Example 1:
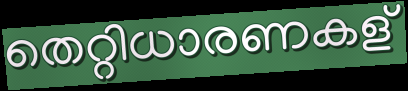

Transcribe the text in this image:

തെറ്റിധാരണകള്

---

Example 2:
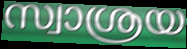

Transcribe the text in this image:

സ്വാശ്രയ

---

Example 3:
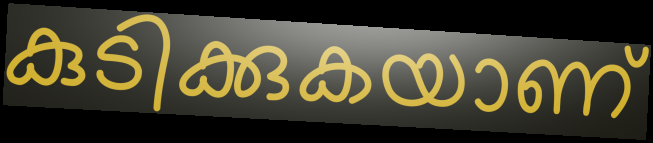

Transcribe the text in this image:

കുടിക്കുകയാണ്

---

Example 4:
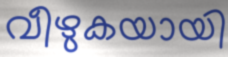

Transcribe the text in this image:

വീഴുകയായി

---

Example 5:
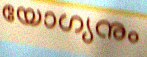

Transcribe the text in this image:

യോഗ്യനും